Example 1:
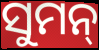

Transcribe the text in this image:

ସୁମନ୍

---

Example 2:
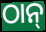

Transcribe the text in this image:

ଠାନ୍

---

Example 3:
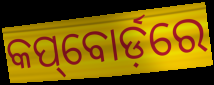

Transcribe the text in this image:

କପ୍‌ବୋର୍ଡ଼ରେ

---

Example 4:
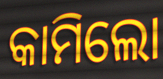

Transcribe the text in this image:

କାମିଲୋ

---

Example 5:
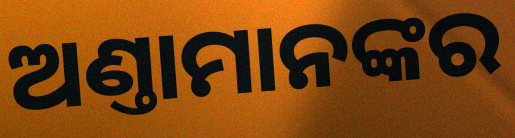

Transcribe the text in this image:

ଅଣ୍ତାମାନଙ୍କର